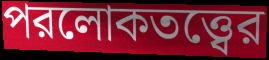
পরলোকতত্ত্বের